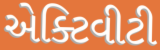
એક્ટિવીટી